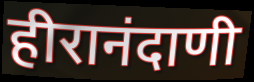
हीरानंदाणी